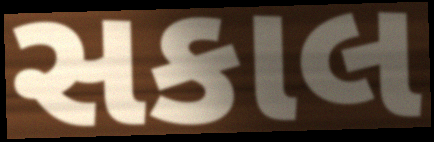
સકાલ